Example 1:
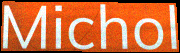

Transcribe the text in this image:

Michol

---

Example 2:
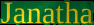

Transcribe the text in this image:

Janatha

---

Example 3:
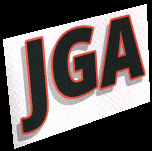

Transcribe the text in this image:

JGA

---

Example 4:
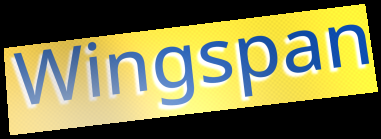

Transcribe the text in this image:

Wingspan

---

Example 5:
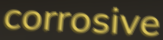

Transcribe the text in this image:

corrosive